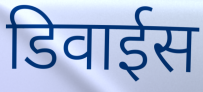
डिवाईस